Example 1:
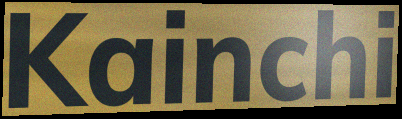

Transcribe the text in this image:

Kainchi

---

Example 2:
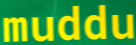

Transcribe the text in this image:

muddu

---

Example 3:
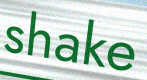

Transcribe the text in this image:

shake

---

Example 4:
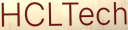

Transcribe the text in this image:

HCLTech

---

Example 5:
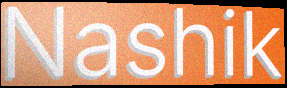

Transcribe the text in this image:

Nashik